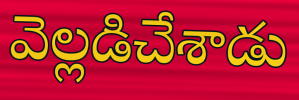
వెల్లడిచేశాడు